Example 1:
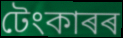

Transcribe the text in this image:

টেংকাৰৰ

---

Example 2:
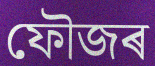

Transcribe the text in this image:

ফৌজৰ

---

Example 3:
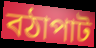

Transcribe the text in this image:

বঠাপাট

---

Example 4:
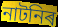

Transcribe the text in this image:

নাটনিৰ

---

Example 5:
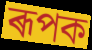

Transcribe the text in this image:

ৰূপক